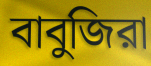
বাবুজিরা